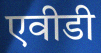
एवीडी